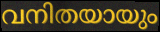
വനിതയായും